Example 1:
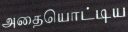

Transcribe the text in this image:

அதையொட்டிய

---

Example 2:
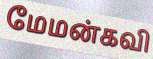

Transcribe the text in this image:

மேமன்கவி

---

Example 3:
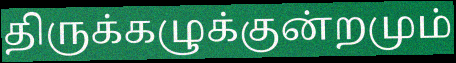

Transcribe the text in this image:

திருக்கழுக்குன்றமும்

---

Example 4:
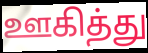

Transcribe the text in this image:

ஊகித்து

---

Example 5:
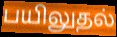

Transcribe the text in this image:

பயிலுதல்